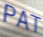
PAT